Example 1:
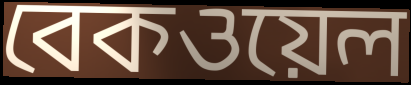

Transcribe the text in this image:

বেকওয়েল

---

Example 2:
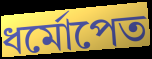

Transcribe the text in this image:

ধর্মোপেত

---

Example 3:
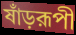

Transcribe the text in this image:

ষাঁড়রূপী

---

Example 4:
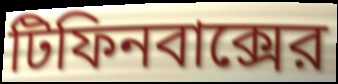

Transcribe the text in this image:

টিফিনবাক্সের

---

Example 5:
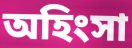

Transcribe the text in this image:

অহিংসা